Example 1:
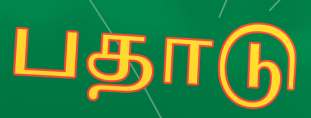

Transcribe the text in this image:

பதாடு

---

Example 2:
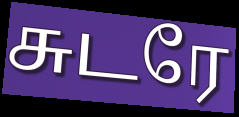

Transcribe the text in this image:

சுடரே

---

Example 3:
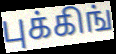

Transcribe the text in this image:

புக்கிங்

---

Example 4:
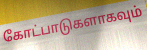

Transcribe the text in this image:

கோட்பாடுகளாகவும்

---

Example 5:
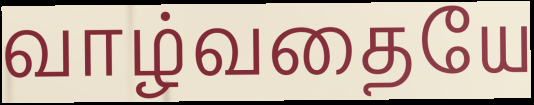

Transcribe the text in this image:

வாழ்வதையே